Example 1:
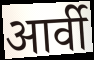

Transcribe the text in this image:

आर्वी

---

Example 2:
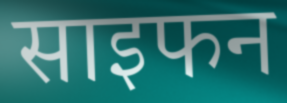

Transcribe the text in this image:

साइफन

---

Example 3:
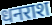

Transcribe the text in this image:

धनराश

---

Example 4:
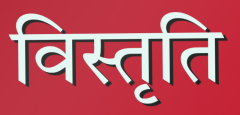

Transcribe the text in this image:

विस्तृति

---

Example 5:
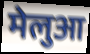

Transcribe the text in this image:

मेलुआ